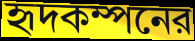
হৃদকম্পনের